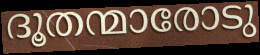
ദൂതന്മാരോടു